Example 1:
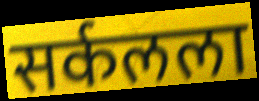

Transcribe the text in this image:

सर्कलला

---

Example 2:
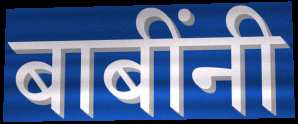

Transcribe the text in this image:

बाबींनी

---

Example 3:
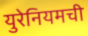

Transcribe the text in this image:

युरेनियमची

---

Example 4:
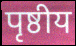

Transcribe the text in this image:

पृष्ठीय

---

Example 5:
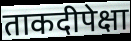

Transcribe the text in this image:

ताकदीपेक्षा